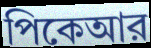
পিকেআর